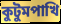
কুটুমপাখি